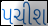
પચીશ